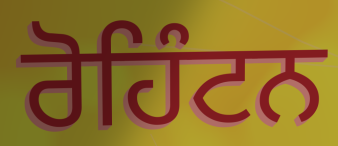
ਰੋਹਿੰਟਨ